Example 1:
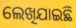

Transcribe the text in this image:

ଲେଖିଯାଇଛି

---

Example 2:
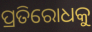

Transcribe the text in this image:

ପ୍ରତିରୋଧକୁ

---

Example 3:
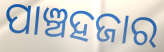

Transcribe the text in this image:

ପାଞ୍ଚହଜାର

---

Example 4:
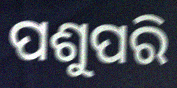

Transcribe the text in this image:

ପଶୁପରି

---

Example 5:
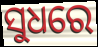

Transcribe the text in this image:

ସୁଧରେ